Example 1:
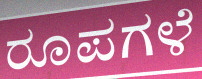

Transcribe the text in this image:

ರೂಪಗಳೆ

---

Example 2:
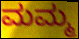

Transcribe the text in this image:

ಮಮ್ಮ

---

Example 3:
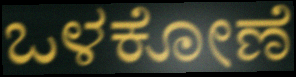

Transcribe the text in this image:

ಒಳಕೋಣೆ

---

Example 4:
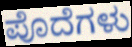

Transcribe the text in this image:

ಪೊದೆಗಳು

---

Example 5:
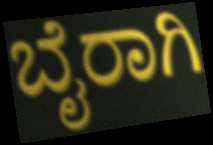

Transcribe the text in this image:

ಬೈರಾಗಿ